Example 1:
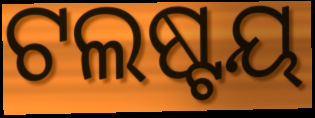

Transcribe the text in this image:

ଟଲଷ୍ଟୟ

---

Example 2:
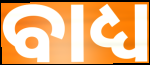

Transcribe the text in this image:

ବାଧ୍ୟ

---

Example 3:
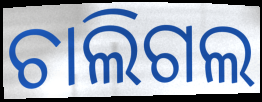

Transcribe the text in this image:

ଚାଲିଗଲ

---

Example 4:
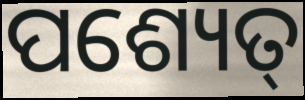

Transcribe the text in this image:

ପଶ୍ୟେତ୍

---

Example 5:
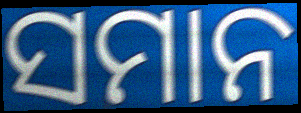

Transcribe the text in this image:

ସମାନ